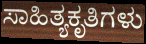
ಸಾಹಿತ್ಯಕೃತಿಗಳು